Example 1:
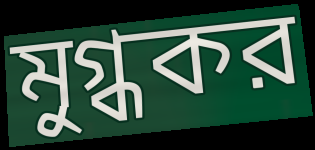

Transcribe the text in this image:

মুগ্ধকর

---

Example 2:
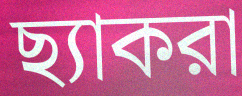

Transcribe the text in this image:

ছ্যাকরা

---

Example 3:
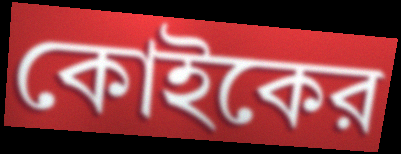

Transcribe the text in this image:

কোইকের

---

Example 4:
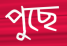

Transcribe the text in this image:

পুছে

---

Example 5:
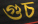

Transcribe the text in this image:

গুচ